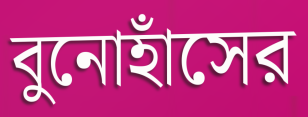
বুনোহাঁসের